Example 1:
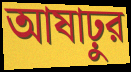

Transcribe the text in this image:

আষাঢ়ুর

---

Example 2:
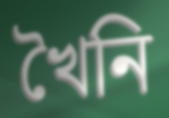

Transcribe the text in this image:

খৈনি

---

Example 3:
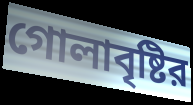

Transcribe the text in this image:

গোলাবৃষ্টির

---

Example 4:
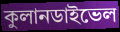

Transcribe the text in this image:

কুলানডাইভেল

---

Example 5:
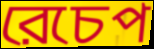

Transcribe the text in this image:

রেচেপ